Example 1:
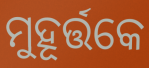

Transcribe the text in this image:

ମୁହୂର୍ତ୍ତକେ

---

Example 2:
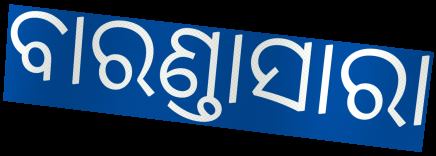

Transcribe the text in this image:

ବାରଣ୍ଡାସାରା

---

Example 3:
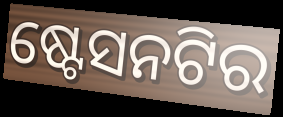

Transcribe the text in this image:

ଷ୍ଟେସନଟିର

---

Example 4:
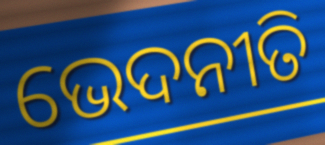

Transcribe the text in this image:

ଭେଦନୀତି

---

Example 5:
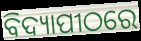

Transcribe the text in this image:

ବିଦ୍ୟାପୀଠରେ